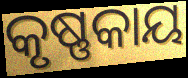
କୃଷ୍ଣକାୟ